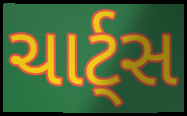
ચાર્ટ્સ